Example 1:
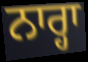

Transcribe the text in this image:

ਨਾਰ੍ਹਾ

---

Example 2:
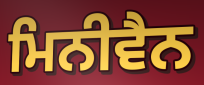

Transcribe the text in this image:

ਮਿਨੀਵੈਨ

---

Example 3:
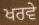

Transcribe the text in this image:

ਖਰਵੇ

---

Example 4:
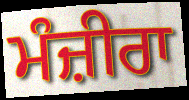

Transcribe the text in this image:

ਮੰਜ਼ੀਰਾ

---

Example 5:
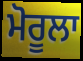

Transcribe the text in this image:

ਮੋਰੂਲਾ